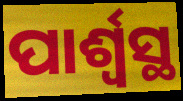
ପାର୍ଶ୍ୱସ୍ଥ